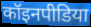
कॉइनपीडिया